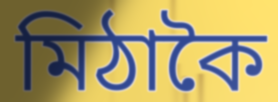
মিঠাকৈ